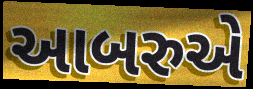
આબરુએ